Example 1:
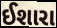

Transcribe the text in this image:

ઈશારા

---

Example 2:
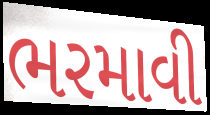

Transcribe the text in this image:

ભરમાવી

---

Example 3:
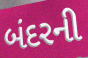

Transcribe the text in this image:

બંદરની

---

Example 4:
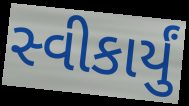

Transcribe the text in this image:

સ્વીકાર્યું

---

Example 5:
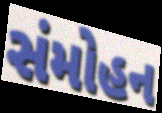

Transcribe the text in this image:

સંમોહન